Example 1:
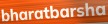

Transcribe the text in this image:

bharatbarsha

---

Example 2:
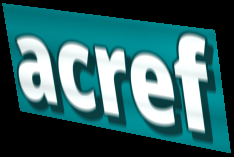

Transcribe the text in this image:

acref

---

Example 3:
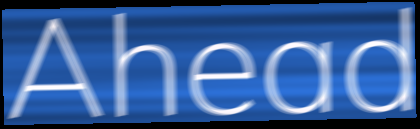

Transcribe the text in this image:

Ahead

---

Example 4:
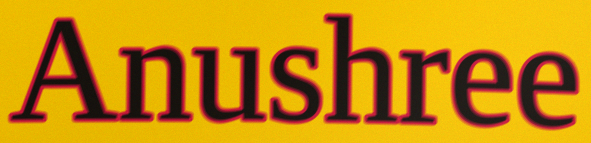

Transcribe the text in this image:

Anushree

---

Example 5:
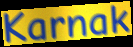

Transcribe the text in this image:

Karnak